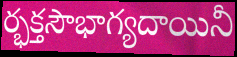
ర్భక్తసౌభాగ్యదాయినీ